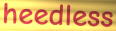
heedless